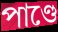
পাণ্ডে